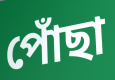
পোঁছা